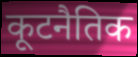
कूटनैतिक